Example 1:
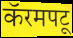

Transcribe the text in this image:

कॅरमपटू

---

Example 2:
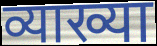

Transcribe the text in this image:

व्याख्या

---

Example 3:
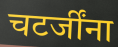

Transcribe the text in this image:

चटर्जींना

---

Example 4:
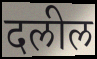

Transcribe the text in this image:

दलील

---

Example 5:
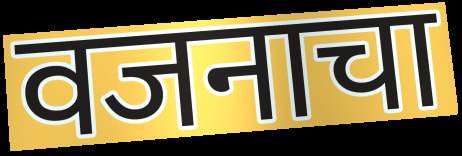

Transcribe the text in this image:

वजनाचा